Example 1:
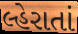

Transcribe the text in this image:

લ્હેરાતાં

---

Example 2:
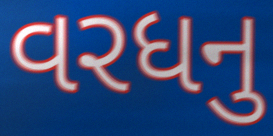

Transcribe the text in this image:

વરધનુ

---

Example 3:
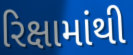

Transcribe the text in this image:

રિક્ષામાંથી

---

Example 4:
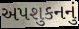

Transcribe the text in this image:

અપશુકનનું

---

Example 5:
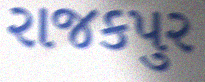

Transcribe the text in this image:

રાજકપુર